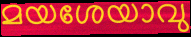
മയശേയാവു